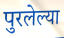
पुरलेल्या